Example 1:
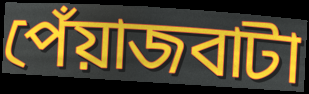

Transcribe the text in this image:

পেঁয়াজবাটা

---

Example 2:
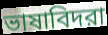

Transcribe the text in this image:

ভাষাবিদরা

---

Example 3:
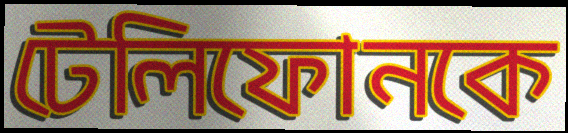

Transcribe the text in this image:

টেলিফোনকে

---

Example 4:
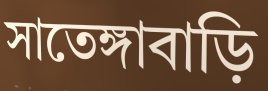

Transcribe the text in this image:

সাতেঙ্গাবাড়ি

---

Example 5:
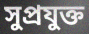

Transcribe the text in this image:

সুপ্রযুক্ত